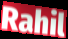
Rahil